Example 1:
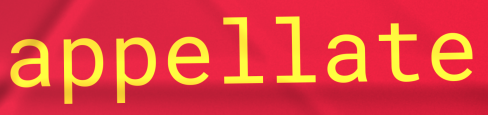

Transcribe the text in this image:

appellate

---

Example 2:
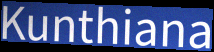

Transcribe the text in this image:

Kunthiana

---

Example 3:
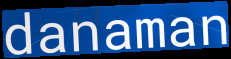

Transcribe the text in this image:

danaman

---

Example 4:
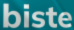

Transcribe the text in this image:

biste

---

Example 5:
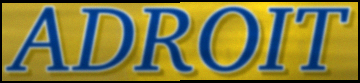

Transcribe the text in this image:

ADROIT